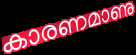
കാരണമാണു